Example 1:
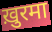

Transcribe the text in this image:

ख़ुरमा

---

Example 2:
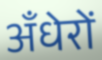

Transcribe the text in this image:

अँधेरों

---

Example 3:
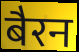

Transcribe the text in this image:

बैरन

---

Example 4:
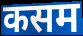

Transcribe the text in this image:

कसम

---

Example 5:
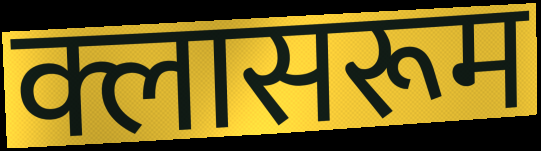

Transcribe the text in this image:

क्‍लासरूम